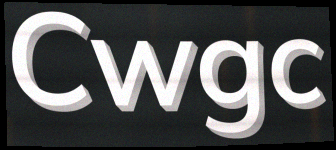
Cwgc